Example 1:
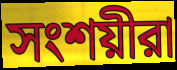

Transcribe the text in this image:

সংশয়ীরা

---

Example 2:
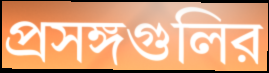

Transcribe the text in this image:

প্রসঙ্গগুলির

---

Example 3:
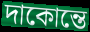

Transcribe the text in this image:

দাকোন্তে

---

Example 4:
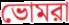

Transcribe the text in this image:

ভোমরা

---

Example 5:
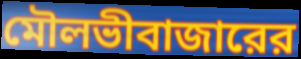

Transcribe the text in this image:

মৌলভীবাজারের